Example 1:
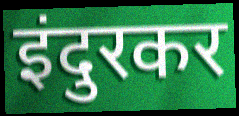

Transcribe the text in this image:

इंदुरकर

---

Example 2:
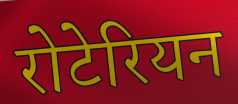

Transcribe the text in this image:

रोटेरियन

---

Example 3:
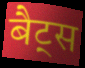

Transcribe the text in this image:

बैट्स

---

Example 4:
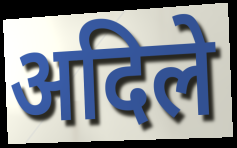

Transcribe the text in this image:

अदिले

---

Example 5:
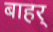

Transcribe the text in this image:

बाहर्